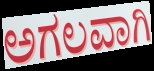
ಅಗಲವಾಗಿ